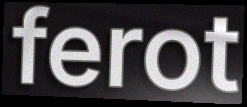
ferot